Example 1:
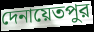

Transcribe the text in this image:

দেনায়েতপুর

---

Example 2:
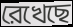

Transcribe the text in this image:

রেখেছে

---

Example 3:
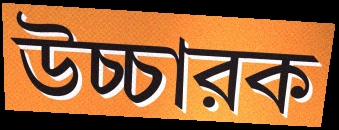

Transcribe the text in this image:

উচ্চারক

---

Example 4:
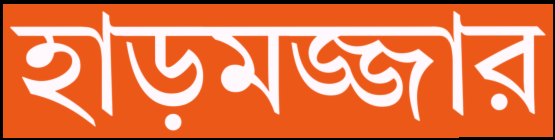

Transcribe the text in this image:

হাড়মজ্জার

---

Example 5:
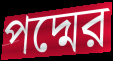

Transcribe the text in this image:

পদ্মের